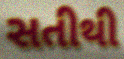
સતીથી